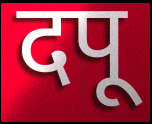
दपू